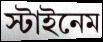
স্টাইনেম